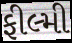
ફીલ્મી